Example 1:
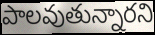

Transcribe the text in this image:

పాలవుతున్నారని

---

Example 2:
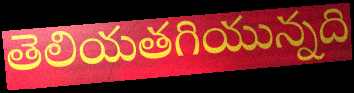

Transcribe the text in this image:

తెలియతగియున్నది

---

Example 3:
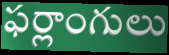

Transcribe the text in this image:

ఫర్లాంగులు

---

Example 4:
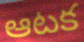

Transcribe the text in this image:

ఆటక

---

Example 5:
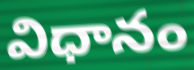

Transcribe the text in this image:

విధానం